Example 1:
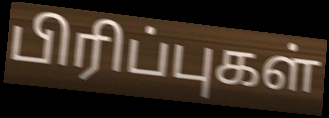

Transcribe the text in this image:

பிரிப்புகள்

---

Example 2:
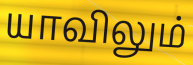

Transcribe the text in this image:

யாவிலும்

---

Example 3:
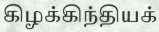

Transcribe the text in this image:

கிழக்கிந்தியக்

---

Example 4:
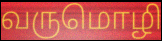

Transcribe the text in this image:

வருமொழி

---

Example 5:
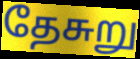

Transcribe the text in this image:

தேசுறு